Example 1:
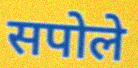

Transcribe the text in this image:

सपोले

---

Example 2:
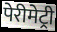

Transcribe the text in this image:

पेरीमेट्री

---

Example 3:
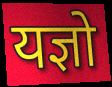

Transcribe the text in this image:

यज्ञो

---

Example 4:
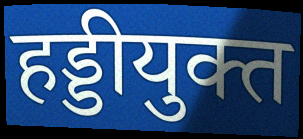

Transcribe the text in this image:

हड्डीयुक्त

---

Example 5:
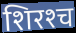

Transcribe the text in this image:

शिरश्च